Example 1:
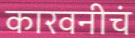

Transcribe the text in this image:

कारवनीचं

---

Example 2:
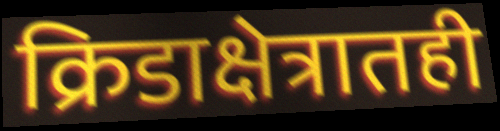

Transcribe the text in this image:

क्रिडाक्षेत्रातही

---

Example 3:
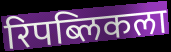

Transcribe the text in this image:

रिपब्लिकला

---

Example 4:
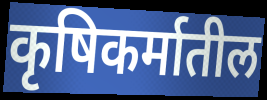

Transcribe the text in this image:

कृषिकर्मातील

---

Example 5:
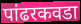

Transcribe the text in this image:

पांढरकवडा